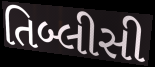
તિબ્લીસી